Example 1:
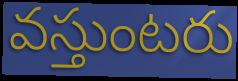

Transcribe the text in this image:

వస్తుంటరు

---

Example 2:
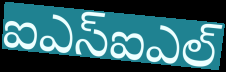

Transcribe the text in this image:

ఐఎస్ఐఎల్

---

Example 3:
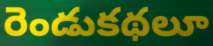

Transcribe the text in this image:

రెండుకథలూ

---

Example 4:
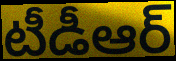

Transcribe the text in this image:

టీడీఆర్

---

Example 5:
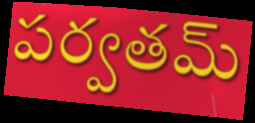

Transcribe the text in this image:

పర్వతమ్